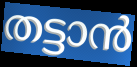
തട്ടാൻ